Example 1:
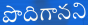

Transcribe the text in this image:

పొదిగానని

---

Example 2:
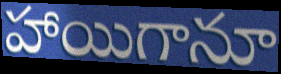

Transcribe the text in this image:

హాయిగానూ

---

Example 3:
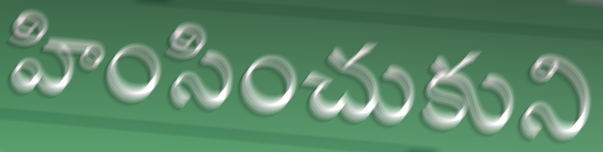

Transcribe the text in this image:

హింసించుకుని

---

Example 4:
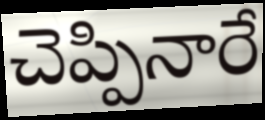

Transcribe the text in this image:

చెప్పినారే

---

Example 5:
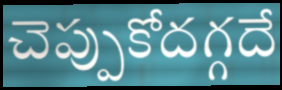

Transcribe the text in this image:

చెప్పుకోదగ్గదే